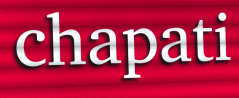
chapati